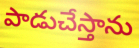
పాడుచేస్తాను